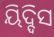
ୟିଦ୍ଦିସ